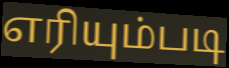
எரியும்படி